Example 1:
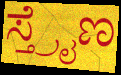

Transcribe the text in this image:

ಸ್ತ್ರೈಣ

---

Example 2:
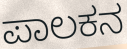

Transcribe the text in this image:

ಪಾಲಕನ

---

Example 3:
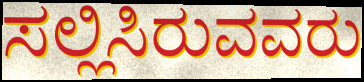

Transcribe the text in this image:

ಸಲ್ಲಿಸಿರುವವರು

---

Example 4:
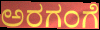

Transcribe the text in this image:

ಅರಗಂಗೆ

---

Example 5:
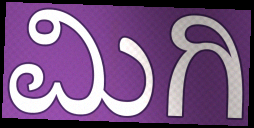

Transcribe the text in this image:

ಮಿಗಿ